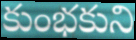
కుంభకుని